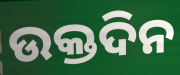
ଉକ୍ତଦିନ